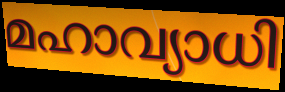
മഹാവ്യാധി